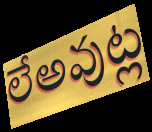
లేఅవుట్ల